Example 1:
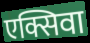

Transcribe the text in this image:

एक्सिवा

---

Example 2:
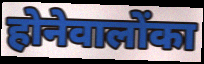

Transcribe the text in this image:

होनेवालोंका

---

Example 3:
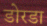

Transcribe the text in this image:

डोरडा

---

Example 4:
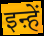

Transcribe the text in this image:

इऩ्हें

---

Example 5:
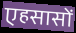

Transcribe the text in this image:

एहसासों